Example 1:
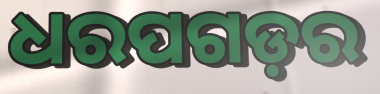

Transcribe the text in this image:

ଧରପଗଡ଼ର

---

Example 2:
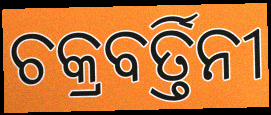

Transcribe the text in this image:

ଚକ୍ରବର୍ତ୍ତିନୀ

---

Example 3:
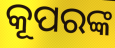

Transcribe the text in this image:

କୂପରଙ୍କ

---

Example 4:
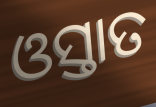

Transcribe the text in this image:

ଓସ୍ତାତ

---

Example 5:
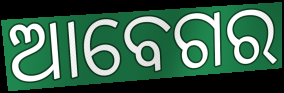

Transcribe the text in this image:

ଆବେଗର